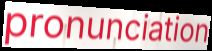
pronunciation